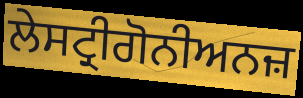
ਲੇਸਟ੍ਰੀਗੋਨੀਅਨਜ਼